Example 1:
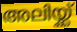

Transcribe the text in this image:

അലിയ്ക്ക്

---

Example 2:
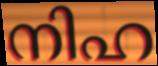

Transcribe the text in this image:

നിഹ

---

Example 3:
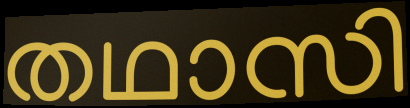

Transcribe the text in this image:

തഥാസി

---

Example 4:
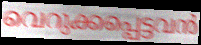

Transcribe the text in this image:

വെറുക്കപ്പെട്ടവൻ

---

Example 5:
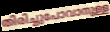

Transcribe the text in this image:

തിരിച്ചുപോവാനുള്ള